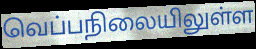
வெப்பநிலையிலுள்ள